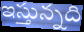
ఇస్తున్నది